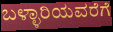
ಬಳ್ಳಾರಿಯವರೆಗೆ